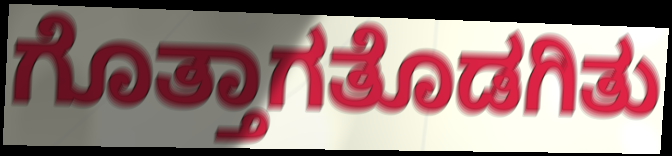
ಗೊತ್ತಾಗತೊಡಗಿತು